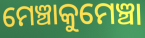
ମେଞ୍ଚାକୁମେଞ୍ଚା